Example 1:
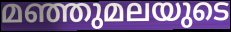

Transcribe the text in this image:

മഞ്ഞുമലയുടെ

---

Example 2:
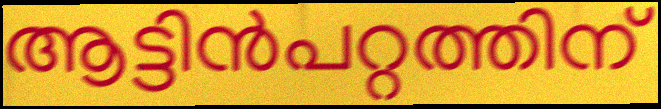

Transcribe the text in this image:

ആട്ടിൻപറ്റത്തിന്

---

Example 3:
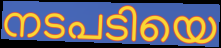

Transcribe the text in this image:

നടപടിയെ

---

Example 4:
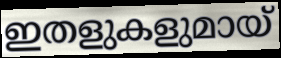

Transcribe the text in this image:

ഇതളുകളുമായ്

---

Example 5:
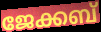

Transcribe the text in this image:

ജേക്കബ്